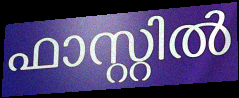
ഫാസ്റ്റിൽ